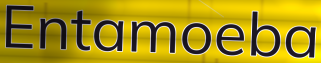
Entamoeba